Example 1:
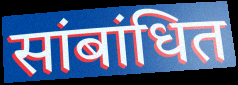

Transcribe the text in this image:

सांबांधित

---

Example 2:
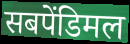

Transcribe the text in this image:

सबपेंडिमल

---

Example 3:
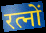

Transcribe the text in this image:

रत्‍नों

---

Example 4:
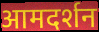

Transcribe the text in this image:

आमदर्शन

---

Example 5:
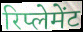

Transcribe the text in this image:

रिप्लेमेंट